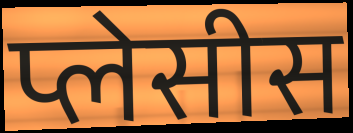
प्लेसीस